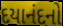
દયાનંદનો